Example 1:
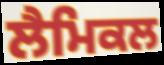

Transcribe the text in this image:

ਲੈਮਿਕਲ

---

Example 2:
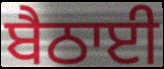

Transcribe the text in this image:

ਬੈਠਾਈ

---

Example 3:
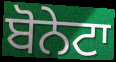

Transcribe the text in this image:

ਬੋਨੇਟਾ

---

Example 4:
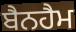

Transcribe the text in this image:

ਬੈਨਹੈਮ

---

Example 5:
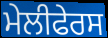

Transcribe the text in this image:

ਮੇਲੀਫੇਰਸ